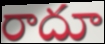
రాదూ